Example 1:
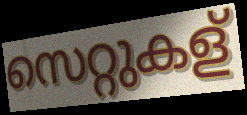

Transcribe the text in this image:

സെറ്റുകള്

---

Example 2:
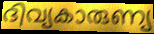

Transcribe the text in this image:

ദിവ്യകാരുണ്യ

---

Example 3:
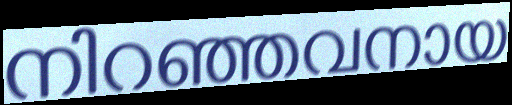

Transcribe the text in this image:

നിറഞ്ഞവനായ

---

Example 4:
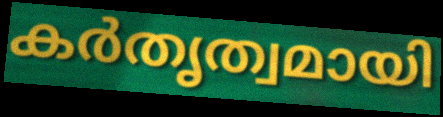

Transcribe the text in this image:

കർതൃത്വമായി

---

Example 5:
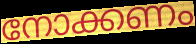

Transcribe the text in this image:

നോക്കണം